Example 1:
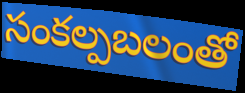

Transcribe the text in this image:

సంకల్పబలంతో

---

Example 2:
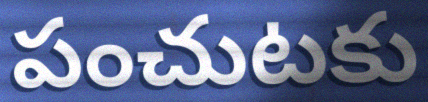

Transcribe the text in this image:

పంచుటకు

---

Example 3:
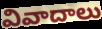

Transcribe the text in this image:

వివాదాలు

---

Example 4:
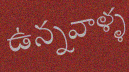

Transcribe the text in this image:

ఉన్నవాళ్ళ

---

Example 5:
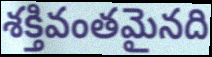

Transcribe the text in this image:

శక్తివంతమైనది